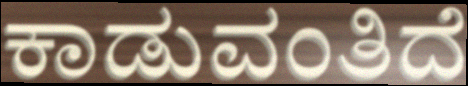
ಕಾಡುವಂತಿದೆ